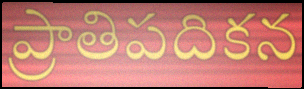
ప్రాతిపదికన